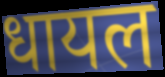
धायल